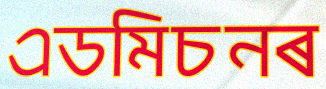
এডমিচনৰ